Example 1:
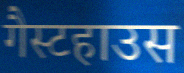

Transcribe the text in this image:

गैस्टहाउस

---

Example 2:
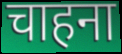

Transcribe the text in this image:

चाहना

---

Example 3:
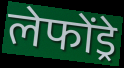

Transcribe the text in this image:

लेफोंड्रे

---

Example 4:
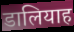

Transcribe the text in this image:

डालियाह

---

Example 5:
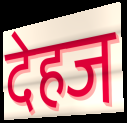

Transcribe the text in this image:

देहज